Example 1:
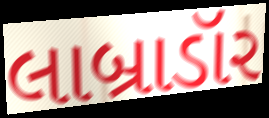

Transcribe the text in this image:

લાબ્રાડૉર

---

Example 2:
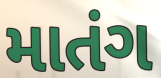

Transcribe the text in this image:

માતંગ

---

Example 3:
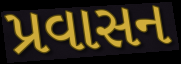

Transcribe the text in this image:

પ્રવાસન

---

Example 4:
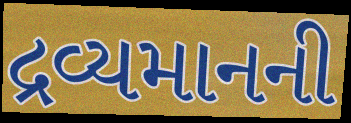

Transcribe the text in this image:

દ્રવ્યમાનની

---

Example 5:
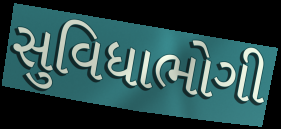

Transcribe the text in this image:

સુવિધાભોગી